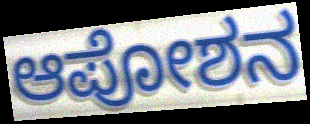
ಆಪೋಶನ